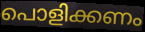
പൊളിക്കണം